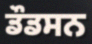
ਡੌਡਸਨ